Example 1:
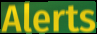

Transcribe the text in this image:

Alerts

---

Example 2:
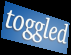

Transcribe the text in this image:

toggled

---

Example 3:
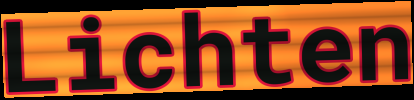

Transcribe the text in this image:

Lichten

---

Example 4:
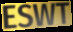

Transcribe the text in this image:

ESWT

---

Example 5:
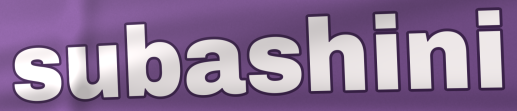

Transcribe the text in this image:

subashini